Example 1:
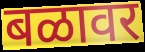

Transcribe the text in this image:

बळावर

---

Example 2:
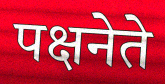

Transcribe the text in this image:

पक्षनेते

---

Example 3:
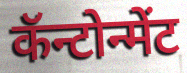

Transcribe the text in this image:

कॅन्टोन्मेंट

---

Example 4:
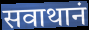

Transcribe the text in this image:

सवाथानं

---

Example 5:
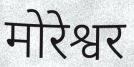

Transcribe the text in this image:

मोरेश्वर